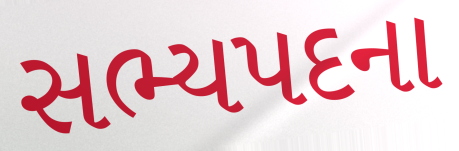
સભ્યપદના